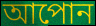
আপোন